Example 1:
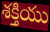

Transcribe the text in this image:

శక్తియు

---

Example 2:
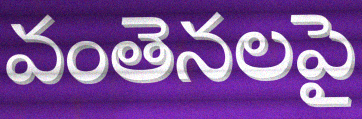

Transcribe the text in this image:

వంతెనలపై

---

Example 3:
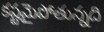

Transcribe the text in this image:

కష్టమైపోతున్నది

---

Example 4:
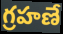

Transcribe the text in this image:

గ్రహణే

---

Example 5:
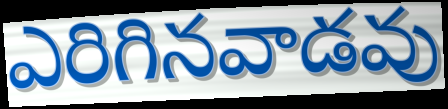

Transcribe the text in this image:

ఎరిగినవాడవు